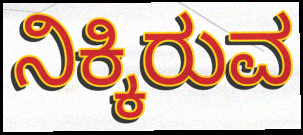
ನಿಕ್ಕಿರುವ